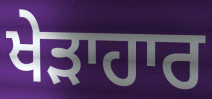
ਖੇੜਾਹਾਰ